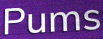
Pums